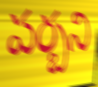
పర్బని